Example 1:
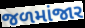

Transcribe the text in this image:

જળમાંજાર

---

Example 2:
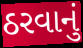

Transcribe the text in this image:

ઠરવાનું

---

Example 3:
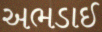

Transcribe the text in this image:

અભડાઈ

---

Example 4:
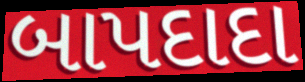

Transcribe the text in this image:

બાપદાદા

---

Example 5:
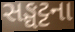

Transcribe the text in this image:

સઙ્ઘટ્ટના